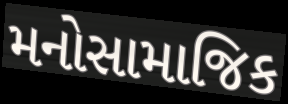
મનોસામાજિક